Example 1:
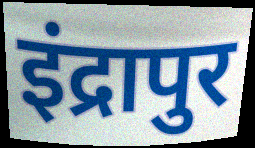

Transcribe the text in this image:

इंद्रापुर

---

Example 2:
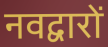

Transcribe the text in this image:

नवद्वारों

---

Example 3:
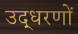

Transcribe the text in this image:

उद्धरणों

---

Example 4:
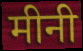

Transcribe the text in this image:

मीनी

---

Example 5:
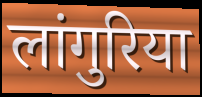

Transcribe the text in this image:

लांगुरिया